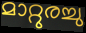
മാറ്റുരച്ചു